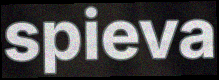
spieva